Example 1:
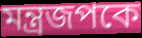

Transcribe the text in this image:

মন্ত্রজপকে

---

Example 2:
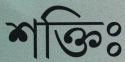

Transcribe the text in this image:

শক্তিঃ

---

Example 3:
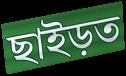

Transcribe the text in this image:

ছাইড়ত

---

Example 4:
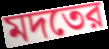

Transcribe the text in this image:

মদতের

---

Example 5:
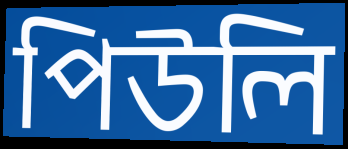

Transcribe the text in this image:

পিউলি